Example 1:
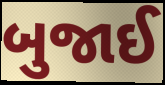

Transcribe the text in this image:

બુજાઈ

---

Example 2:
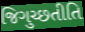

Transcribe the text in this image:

જિગુચ્છતીતિ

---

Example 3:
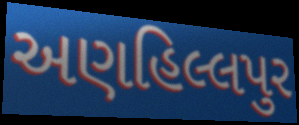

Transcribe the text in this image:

અણહિલ્લપુર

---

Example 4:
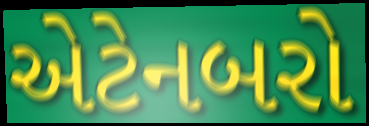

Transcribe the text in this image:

એટેનબરો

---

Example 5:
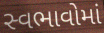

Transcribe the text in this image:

સ્વભાવોમાં